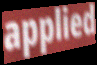
applied